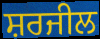
ਸ਼ਰਜੀਲ